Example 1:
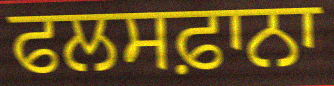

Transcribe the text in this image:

ਫਲਸਫ਼ਾਨਾ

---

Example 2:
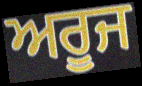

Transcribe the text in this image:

ਅਰੂਜ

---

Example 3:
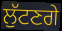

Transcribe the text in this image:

ਲੁੱਟਣਗੇ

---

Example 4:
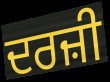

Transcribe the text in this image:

ਦਰਜ਼ੀ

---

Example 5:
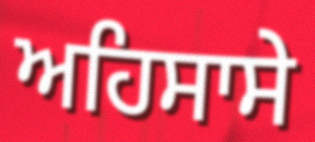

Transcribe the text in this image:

ਅਹਿਸਾਸੇ